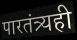
पारतंत्र्यही